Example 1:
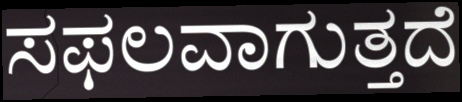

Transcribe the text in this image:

ಸಫಲವಾಗುತ್ತದೆ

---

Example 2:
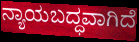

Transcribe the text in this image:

ನ್ಯಾಯಬದ್ಧವಾಗಿದೆ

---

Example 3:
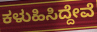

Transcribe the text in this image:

ಕಳುಹಿಸಿದ್ದೇವೆ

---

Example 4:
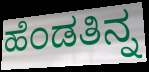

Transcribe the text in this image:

ಹೆಂಡತಿನ್ನ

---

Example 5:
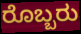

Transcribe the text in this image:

ರೊಬ್ಬರು